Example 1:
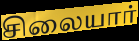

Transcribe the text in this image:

சிலையார்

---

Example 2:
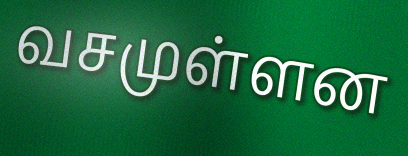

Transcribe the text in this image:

வசமுள்ளன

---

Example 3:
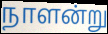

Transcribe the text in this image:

நாளன்று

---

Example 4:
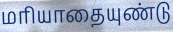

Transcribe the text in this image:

மரியாதையுண்டு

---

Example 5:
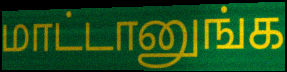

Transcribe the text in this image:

மாட்டானுங்க